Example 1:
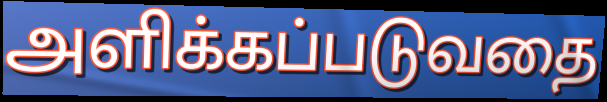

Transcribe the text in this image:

அளிக்கப்படுவதை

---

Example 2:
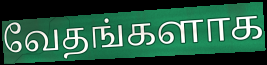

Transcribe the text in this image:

வேதங்களாக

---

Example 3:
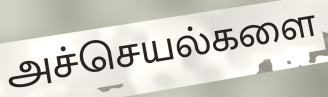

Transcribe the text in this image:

அச்செயல்களை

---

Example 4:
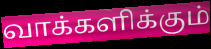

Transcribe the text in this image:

வாக்களிக்கும்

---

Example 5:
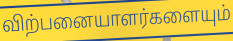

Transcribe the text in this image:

விற்பனையாளர்களையும்